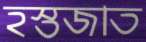
হস্তজাত